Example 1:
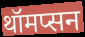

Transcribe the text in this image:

थॉमप्सन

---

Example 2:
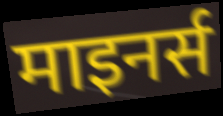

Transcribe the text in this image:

माइनर्स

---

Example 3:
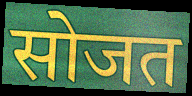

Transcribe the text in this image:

सोजत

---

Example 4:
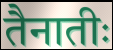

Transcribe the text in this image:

तैनातीः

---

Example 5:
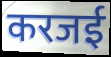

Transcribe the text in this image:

करजई